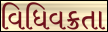
વિધિવક્રતા